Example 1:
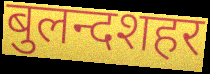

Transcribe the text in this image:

बुलन्दशहर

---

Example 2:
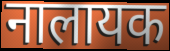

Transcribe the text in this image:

नालायक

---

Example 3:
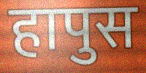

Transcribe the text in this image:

हापुस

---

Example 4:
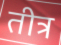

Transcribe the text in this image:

तीत्र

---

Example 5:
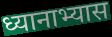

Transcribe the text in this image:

ध्यानाभ्यास